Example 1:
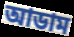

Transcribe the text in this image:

আডাম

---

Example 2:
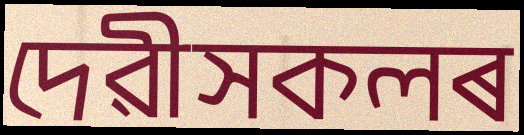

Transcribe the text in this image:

দেৱীসকলৰ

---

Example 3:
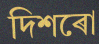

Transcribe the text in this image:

দিশৰো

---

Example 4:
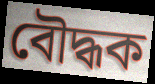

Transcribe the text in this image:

বৌদ্ধক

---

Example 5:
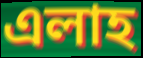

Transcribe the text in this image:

এলাহ